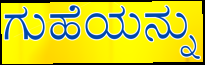
ಗುಹೆಯನ್ನು